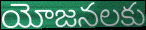
యోజనలకు